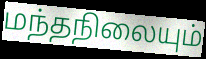
மந்தநிலையும்